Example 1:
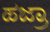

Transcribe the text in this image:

ಹಜ್ರಾ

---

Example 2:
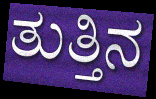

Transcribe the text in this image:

ತುತ್ತಿನ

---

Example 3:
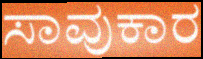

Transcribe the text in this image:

ಸಾವುಕಾರ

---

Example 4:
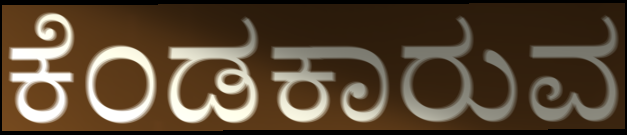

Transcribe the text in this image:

ಕೆಂಡಕಾರುವ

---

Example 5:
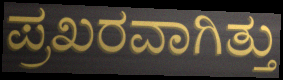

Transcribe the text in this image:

ಪ್ರಖರವಾಗಿತ್ತು